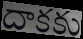
దాకకు